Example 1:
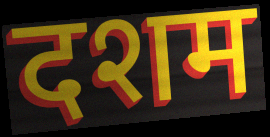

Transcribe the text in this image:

दशम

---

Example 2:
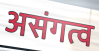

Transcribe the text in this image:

असंगत्व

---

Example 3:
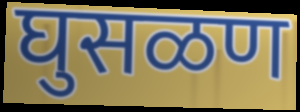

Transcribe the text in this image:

घुसळण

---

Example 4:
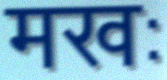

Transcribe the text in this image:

मखः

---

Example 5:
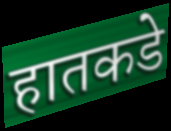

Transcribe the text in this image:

हातकडे